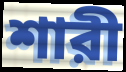
শারী